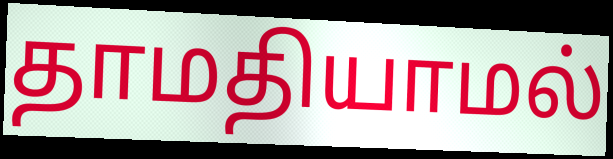
தாமதியாமல்